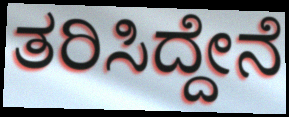
ತರಿಸಿದ್ದೇನೆ